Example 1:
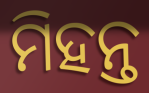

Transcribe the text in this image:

ମିହନ୍ତ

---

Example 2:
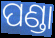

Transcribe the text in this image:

ପଣ୍ଡା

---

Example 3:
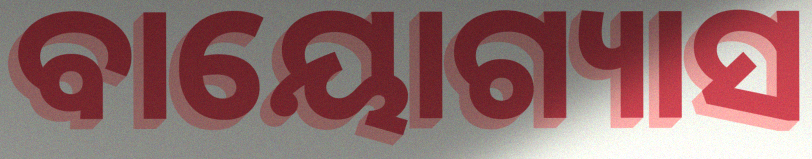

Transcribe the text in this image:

ବାୟୋଗ୍ୟାସ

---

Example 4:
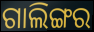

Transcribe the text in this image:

ଗାଲିଙ୍ଗର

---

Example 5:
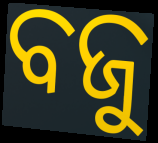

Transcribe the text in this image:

ବଜୁ